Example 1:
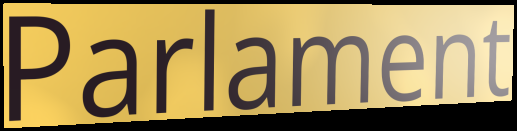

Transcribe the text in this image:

Parlament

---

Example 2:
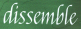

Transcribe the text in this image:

dissemble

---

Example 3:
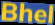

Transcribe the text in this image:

Bhel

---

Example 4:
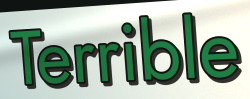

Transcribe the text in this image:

Terrible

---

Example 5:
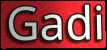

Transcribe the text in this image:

Gadi